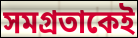
সমগ্রতাকেই